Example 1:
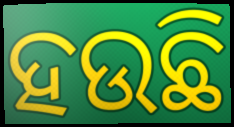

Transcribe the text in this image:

ହଉଛି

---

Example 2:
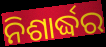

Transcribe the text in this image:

ନିଶାର୍ଦ୍ଧର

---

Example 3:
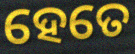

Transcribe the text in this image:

ହେତେ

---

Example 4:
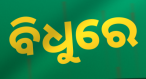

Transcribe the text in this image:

ବିଧୁରେ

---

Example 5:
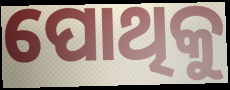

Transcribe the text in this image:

ପୋଥିକୁ